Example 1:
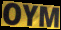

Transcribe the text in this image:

OYM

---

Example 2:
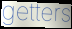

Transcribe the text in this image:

getters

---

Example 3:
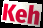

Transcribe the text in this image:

Keh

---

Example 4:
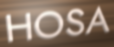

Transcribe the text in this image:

HOSA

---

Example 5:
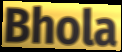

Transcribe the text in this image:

Bhola